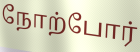
நோற்போர்